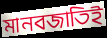
মানবজাতিই